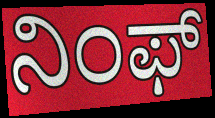
ನಿಂಫ್